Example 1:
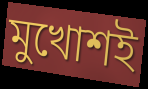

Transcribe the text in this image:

মুখোশই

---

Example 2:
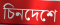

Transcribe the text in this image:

চিনদেশে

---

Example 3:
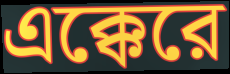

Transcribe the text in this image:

এক্কেরে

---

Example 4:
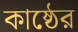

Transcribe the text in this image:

কাষ্ঠের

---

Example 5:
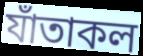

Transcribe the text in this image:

যাঁতাকল